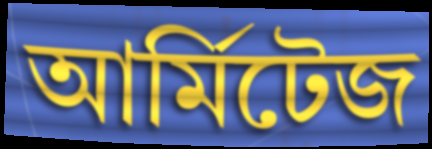
আর্মিটেজ